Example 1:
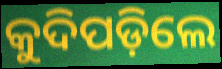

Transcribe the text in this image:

କୁଦିପଡ଼ିଲେ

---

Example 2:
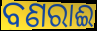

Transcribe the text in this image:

ବଣରାଈ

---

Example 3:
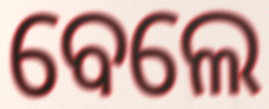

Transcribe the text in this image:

ବେଲେ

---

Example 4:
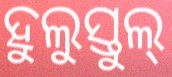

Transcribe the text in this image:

ହୁଲୁସ୍ତୁଲ୍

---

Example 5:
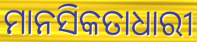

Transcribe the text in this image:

ମାନସିକତାଧାରୀ